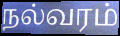
நல்வரம்